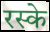
रस्के